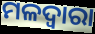
ମଳଦ୍ଵାରା